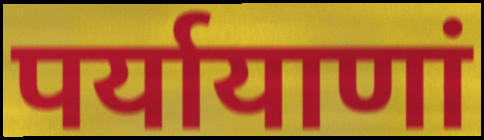
पर्यायाणां